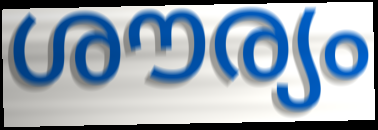
ശൗര്യം